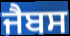
ਜੈਬਸ